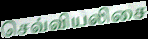
செவ்வியலிசை